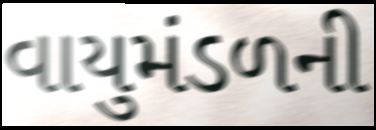
વાયુમંડળની